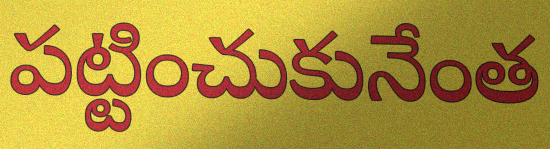
పట్టించుకునేంత